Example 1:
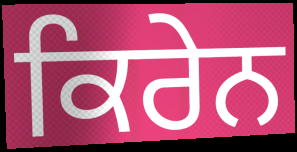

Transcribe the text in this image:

ਕਿਰੇਨ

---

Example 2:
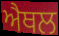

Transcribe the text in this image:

ਐਥਲ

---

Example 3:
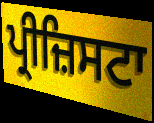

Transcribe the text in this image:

ਪ੍ਰੀਜ਼ਿਸਟਾ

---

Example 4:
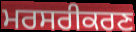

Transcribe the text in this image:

ਮਰਸਰੀਕਰਣ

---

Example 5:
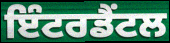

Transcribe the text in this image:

ਇੰਟਰਡੈਂਟਲ